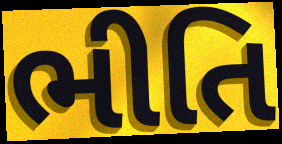
ભીતિ